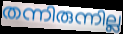
തന്നിരുന്നില്ല